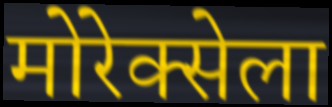
मोरेक्सेला